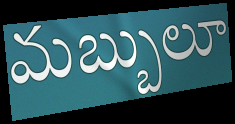
మబ్బులూ